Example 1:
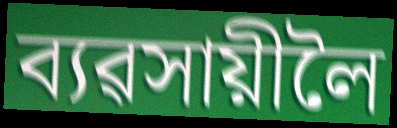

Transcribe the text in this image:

ব্যৱসায়ীলৈ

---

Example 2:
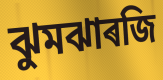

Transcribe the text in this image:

ঝুমঝাৰজি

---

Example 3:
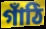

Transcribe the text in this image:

গাঁঠি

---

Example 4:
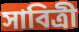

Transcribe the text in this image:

সাবিত্ৰী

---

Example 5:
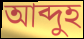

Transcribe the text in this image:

আব্দুহ